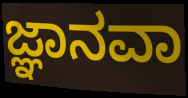
ಜ್ಞಾನವಾ